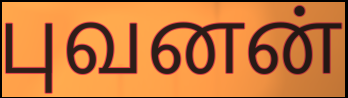
புவனன்